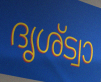
ദൃശ്ട്വാ